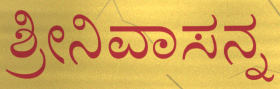
ಶ್ರೀನಿವಾಸನ್ನ